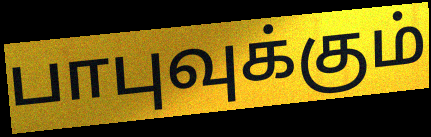
பாபுவுக்கும்